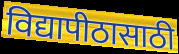
विद्यापीठासाठी